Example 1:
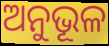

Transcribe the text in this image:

ଅନୁଭୂଳ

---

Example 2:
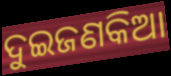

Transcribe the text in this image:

ଦୁଇଜଣକିଆ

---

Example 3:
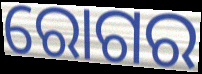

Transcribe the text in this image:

ରୋଗର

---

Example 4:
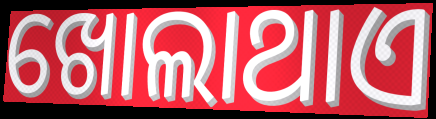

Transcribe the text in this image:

ଖୋଲାଥାଏ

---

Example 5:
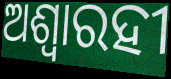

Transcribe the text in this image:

ଅଶ୍ୱାରହୀ